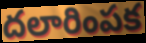
దలారింపక